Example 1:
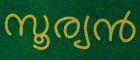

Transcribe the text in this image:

സൂര്യൻ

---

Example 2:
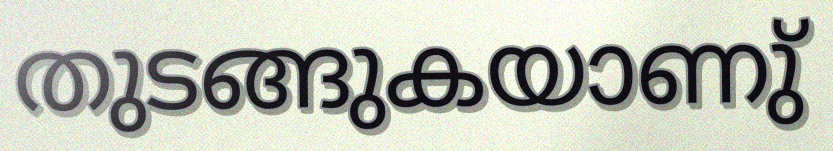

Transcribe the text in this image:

തുടങ്ങുകയാണു്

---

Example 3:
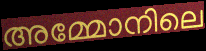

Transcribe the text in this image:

അമ്മോനിലെ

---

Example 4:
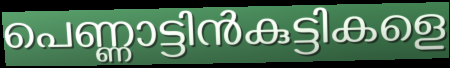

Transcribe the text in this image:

പെണ്ണാട്ടിൻകുട്ടികളെ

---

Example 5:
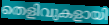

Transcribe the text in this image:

തെളിവുകളായി